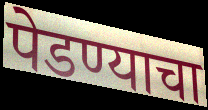
पेडण्याचा